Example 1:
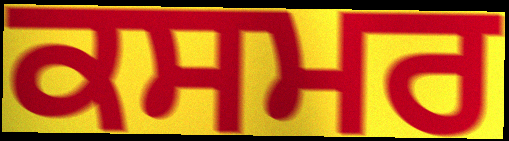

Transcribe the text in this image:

ਕਸਮਰ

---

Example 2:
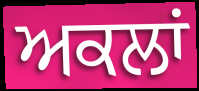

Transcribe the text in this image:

ਅਕਲਾਂ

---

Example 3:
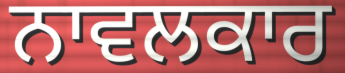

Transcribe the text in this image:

ਨਾਵਲਕਾਰ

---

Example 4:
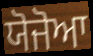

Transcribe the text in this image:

ਯੋਜੋਆ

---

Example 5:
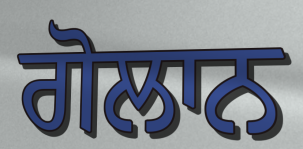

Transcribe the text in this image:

ਗੋਲਾਨ